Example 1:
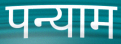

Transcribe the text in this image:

पन्याम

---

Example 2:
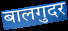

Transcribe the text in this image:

बालगुदर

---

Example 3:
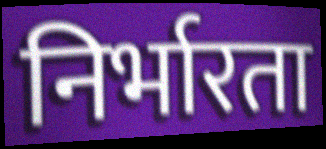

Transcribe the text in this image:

निर्भारता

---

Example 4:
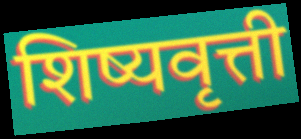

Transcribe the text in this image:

शिष्यवृत्ती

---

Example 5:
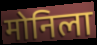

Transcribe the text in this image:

मोनिला